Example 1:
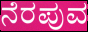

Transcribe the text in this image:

ನೆರಪುವ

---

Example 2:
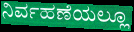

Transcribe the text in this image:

ನಿರ್ವಹಣೆಯಲ್ಲೂ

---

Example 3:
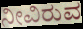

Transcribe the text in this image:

ನೀವಿರುವ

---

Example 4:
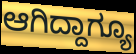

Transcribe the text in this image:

ಆಗಿದ್ದಾಗ್ಯೂ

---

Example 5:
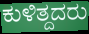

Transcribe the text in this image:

ಕುಳಿತ್ದದರು